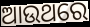
ଆଉଥରେ